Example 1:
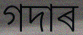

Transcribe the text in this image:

গদাৰ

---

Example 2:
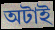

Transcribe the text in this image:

অটাই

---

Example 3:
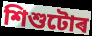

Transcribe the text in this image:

শিশুটোৰ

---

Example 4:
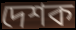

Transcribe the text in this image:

দেশক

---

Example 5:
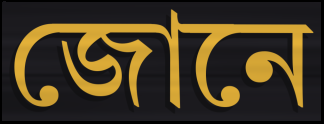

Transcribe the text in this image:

জোনে